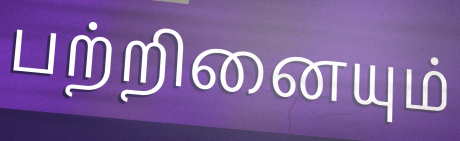
பற்றினையும்